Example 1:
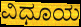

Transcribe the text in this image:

ವಿಧೂಯ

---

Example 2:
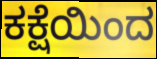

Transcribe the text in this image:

ಕಕ್ಷೆಯಿಂದ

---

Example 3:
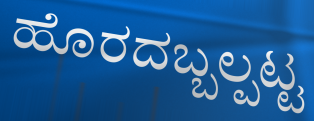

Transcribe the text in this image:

ಹೊರದಬ್ಬಲ್ಪಟ್ಟ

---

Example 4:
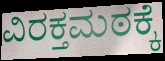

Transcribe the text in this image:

ವಿರಕ್ತಮಠಕ್ಕೆ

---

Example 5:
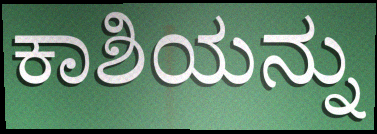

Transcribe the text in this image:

ಕಾಶಿಯನ್ನು